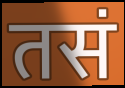
तसं